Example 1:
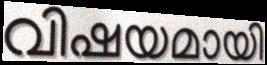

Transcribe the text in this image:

വിഷയമായി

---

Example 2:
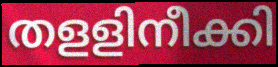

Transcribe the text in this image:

തളളിനീക്കി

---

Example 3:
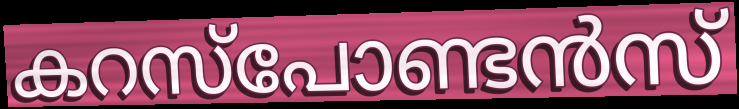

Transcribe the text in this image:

കറസ്പോണ്ടൻസ്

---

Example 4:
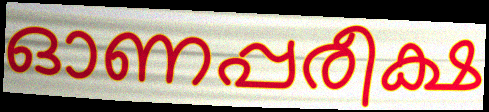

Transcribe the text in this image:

ഓണപ്പരീക്ഷ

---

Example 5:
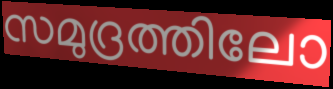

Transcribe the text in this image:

സമുദ്രത്തിലോ